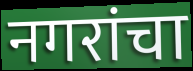
नगरांचा